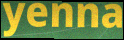
yenna